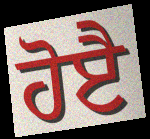
ਹੋੲੈ